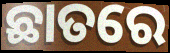
ଛାତରେ